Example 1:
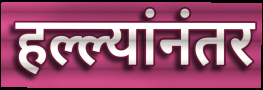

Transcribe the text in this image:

हल्ल्यांनंतर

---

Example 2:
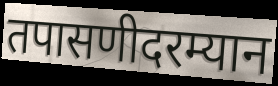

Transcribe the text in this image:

तपासणीदरम्यान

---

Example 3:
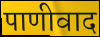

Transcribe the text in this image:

पाणीवाद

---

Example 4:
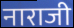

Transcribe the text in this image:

नाराजी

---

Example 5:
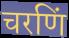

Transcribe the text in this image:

चरणिं